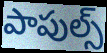
పాపుల్స్